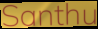
Santhu